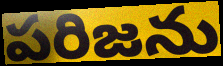
పరిజను